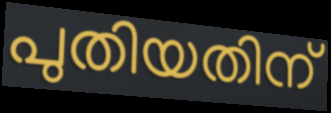
പുതിയതിന്